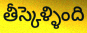
తీస్కెళ్ళింది